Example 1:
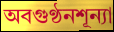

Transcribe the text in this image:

অবগুণ্ঠনশূন্যা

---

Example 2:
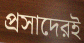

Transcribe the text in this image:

প্রসাদেরই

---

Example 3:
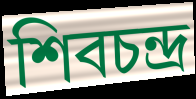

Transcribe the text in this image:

শিবচন্দ্র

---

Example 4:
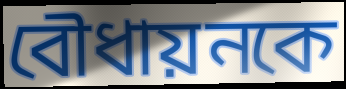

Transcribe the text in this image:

বৌধায়নকে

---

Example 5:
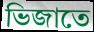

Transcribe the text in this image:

ভিজাতে